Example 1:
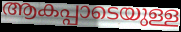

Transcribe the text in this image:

ആകപ്പാടെയുള്ള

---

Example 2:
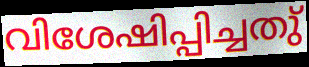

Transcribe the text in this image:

വിശേഷിപ്പിച്ചതു്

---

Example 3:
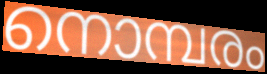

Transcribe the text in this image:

നൊമ്പരം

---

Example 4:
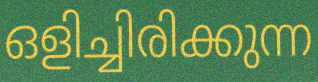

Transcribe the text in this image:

ഒളിച്ചിരിക്കുന്ന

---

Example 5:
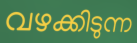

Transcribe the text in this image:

വഴക്കിടുന്ന